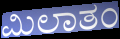
ಮಿಲಾತಂ